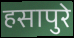
हसापुरे